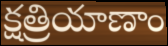
క్షత్రియాణాం